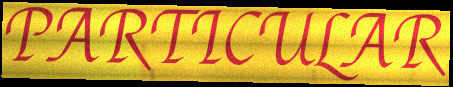
PARTICULAR